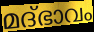
മദ്ഭാവം